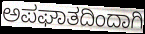
ಅಪಘಾತದಿಂದಾಗಿ